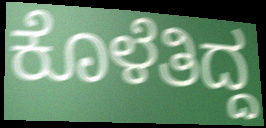
ಕೊಳೆತಿದ್ದ